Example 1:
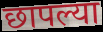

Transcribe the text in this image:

छापल्या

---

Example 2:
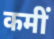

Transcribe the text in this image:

कमीं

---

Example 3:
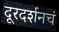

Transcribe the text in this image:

दूरदर्शनचं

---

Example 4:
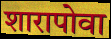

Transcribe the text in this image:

शारापोवा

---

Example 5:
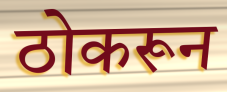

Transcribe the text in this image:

ठोकरून